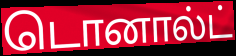
டொனால்ட்